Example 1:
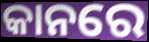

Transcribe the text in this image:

କାନରେ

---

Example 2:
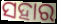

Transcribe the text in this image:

ସହାର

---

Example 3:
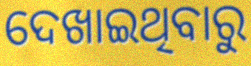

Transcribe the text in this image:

ଦେଖାଇଥିବାରୁ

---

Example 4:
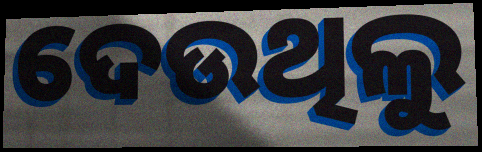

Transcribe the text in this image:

ଦେଉଥିଲୁ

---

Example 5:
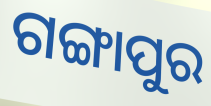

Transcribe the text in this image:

ଗଙ୍ଗାପୁର